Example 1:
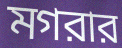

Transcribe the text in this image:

মগরার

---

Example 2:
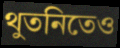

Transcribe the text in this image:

থুতনিতেও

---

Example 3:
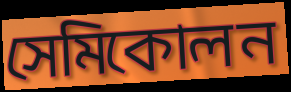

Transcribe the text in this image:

সেমিকোলন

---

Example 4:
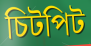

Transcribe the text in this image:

চিটপিট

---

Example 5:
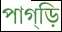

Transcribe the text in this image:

পাগ্ড়ি